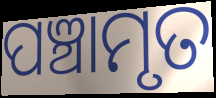
ପଞ୍ଚାମୃତ